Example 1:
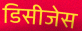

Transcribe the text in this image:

डिसीजेस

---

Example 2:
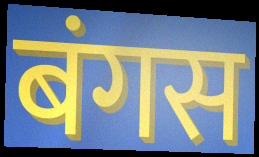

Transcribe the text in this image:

बंगस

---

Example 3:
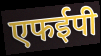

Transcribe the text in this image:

एफईपी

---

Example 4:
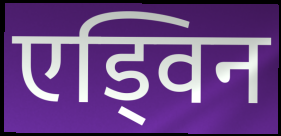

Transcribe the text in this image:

एड्विन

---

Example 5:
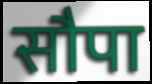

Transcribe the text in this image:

सौपा